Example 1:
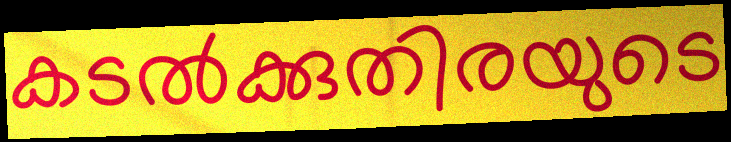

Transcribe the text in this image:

കടൽക്കുതിരയുടെ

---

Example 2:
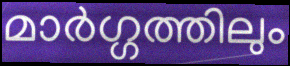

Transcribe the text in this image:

മാർഗ്ഗത്തിലും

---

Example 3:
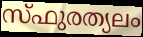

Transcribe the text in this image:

സ്ഫുരത്യലം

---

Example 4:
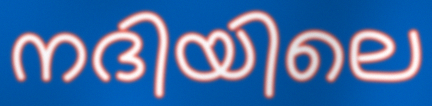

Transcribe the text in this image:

നദിയിലെ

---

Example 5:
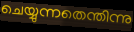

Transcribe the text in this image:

ചെയ്യുന്നതെന്തിന്നു